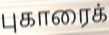
புகாரைக்